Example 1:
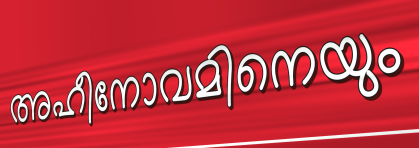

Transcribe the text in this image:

അഹീനോവമിനെയും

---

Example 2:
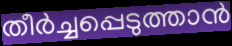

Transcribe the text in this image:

തീർച്ചപ്പെടുത്താൻ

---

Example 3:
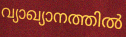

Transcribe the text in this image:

വ്യാഖ്യാനത്തിൽ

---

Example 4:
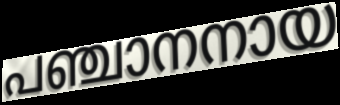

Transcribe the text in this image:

പഞ്ചാനനായ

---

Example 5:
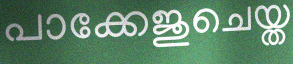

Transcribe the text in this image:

പാക്കേജുചെയ്ത